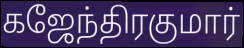
கஜேந்திரகுமார்